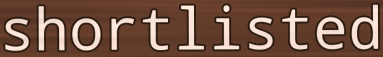
shortlisted